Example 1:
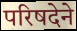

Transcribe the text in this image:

परिषदेने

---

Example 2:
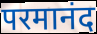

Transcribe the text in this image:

परमानंद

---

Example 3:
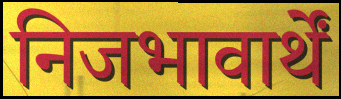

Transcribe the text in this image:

निजभावार्थें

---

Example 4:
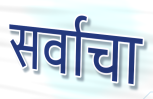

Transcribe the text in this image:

सर्वाचा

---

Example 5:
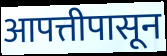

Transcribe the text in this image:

आपत्तीपासून